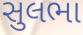
સુલભા